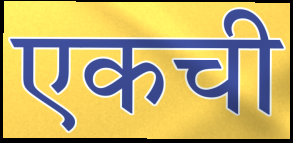
एकची